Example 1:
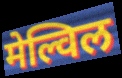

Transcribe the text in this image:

मेल्विल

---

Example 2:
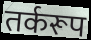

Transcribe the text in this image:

तर्करूप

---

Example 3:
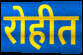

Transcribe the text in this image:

रोहीत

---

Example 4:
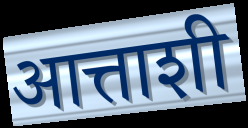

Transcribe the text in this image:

आत्ताशी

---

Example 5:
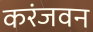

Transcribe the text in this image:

करंजवन